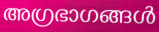
അഗ്രഭാഗങ്ങൾ